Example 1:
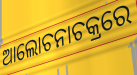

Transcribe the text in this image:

ଆଲୋଚନାଚକ୍ରରେ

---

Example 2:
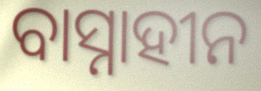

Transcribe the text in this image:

ବାସ୍ନାହୀନ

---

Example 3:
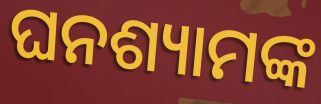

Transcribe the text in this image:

ଘନଶ୍ୟାମଙ୍କ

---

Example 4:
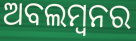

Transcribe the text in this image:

ଅବଲମ୍ବନର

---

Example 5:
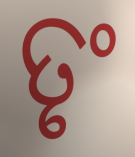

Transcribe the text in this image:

ତୃଂ